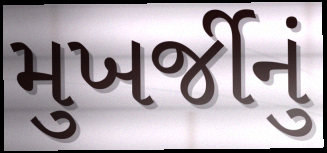
મુખર્જીનું